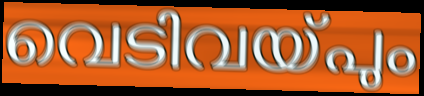
വെടിവയ്പും